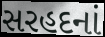
સરહદનાં